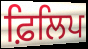
ਫ਼ਿਲਿਪ